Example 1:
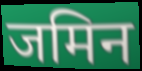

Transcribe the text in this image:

जमिन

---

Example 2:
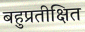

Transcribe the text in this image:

बहुप्रतीक्षित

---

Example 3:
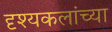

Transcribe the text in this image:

दृश्यकलांच्या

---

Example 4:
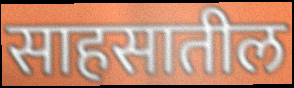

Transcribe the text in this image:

साहसातील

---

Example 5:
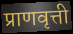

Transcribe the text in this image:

प्राणवृत्ती